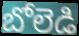
బోలెడి